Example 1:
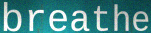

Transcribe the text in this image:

breathe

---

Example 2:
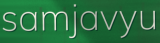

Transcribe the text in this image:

samjavyu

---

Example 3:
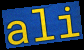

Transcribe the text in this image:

ali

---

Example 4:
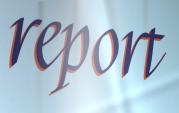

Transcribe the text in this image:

report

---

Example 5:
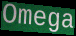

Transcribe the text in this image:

Omega